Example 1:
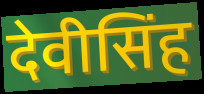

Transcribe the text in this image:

देवीसिंह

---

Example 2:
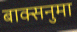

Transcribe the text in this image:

बाक्सनुमा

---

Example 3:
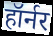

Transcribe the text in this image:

हॉर्नर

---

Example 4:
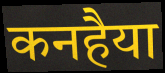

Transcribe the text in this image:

कनहैया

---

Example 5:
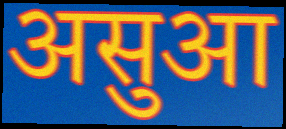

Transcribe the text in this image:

असुआ